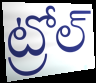
ట్రోల్